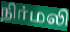
நிர்மலி